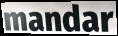
mandar